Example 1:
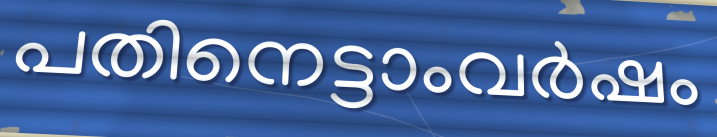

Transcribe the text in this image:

പതിനെട്ടാംവർഷം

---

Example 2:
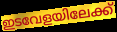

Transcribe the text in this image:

ഇടവേളയിലേക്ക്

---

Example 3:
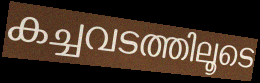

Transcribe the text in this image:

കച്ചവടത്തിലൂടെ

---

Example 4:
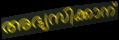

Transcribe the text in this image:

അഭ്യസിക്കാന്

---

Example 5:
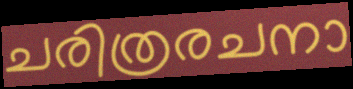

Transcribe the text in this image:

ചരിത്രരചനാ